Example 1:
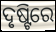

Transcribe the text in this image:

ଦୃଷ୍ଟିରେ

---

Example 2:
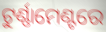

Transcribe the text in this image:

ଟୁର୍ଣ୍ଣାମେଣ୍ଟରେ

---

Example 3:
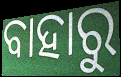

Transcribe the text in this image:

ବାହାରୁ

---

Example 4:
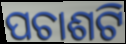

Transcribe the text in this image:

ପଚାଶଟି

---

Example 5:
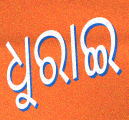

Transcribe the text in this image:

ଧୁରାଇ